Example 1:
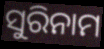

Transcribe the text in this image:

ସୁରିନାମ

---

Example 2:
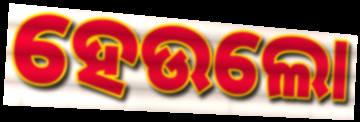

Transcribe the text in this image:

ହେଉଲୋ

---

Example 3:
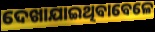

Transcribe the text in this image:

ଦେଖାଯାଇଥିବାବେଳେ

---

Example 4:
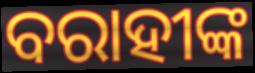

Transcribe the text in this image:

ବରାହୀଙ୍କ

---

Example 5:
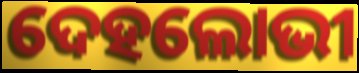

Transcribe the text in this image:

ଦେହଲୋଭୀ